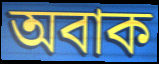
অবাক